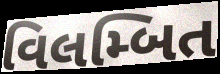
વિલમ્બિત